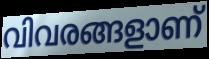
വിവരങ്ങളാണ്